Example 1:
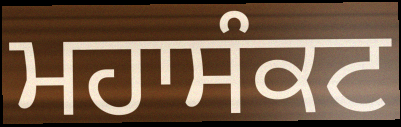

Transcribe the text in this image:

ਮਹਾਸੰਕਟ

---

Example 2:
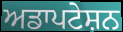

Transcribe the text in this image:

ਅਡਾਪਟੇਸ਼ਨ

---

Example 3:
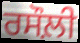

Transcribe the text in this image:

ਰਸੌਲ਼ੀ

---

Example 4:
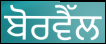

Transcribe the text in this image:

ਬੋਰਵੈੱਲ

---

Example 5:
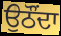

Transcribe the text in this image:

ਉਠੌਂਦਾ